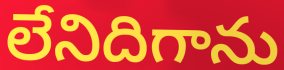
లేనిదిగాను